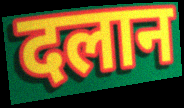
दलान